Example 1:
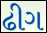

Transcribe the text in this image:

ઢીગ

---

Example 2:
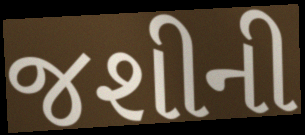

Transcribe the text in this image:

જશીની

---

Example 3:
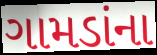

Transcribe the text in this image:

ગામડાંના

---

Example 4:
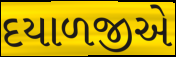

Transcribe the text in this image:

દયાળજીએ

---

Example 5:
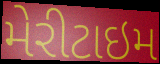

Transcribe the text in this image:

મેરીટાઇમ